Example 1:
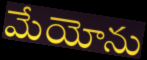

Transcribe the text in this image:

మేయోను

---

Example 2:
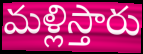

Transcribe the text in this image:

మళ్లిస్తారు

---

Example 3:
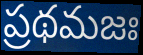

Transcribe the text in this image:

ప్రథమజః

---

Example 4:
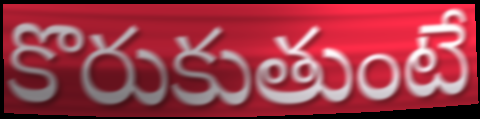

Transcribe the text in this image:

కొరుకుతుంటే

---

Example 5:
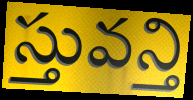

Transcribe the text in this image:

స్తువన్తి